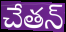
చేతన్